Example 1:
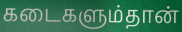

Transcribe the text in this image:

கடைகளும்தான்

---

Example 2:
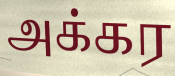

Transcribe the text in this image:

அக்கர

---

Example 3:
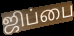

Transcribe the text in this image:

ஜிப்பை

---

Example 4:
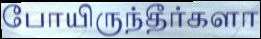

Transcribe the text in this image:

போயிருந்தீர்களா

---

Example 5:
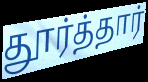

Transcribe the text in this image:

தூர்த்தார்